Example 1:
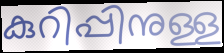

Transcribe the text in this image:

കുറിപ്പിനുള്ള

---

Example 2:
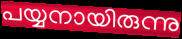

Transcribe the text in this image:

പയ്യനായിരുന്നു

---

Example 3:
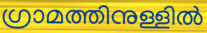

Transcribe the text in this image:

ഗ്രാമത്തിനുള്ളിൽ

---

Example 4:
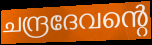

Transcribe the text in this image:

ചന്ദ്രദേവന്റെ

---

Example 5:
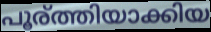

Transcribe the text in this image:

പൂര്ത്തിയാക്കിയ